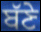
ਬੱਣੇ